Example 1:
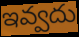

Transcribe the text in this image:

ఇవ్వదు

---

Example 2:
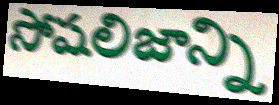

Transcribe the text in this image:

సోషలిజాన్ని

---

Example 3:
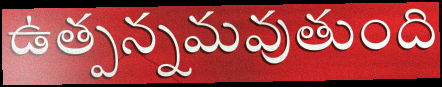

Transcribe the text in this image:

ఉత్పన్నమవుతుంది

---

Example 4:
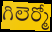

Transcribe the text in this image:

గిలెర్మో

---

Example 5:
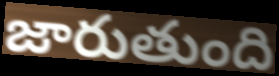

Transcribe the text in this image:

జారుతుంది